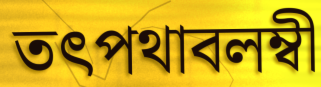
তৎপথাবলম্বী